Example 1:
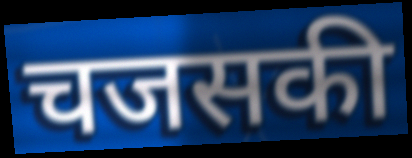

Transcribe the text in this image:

चजसकी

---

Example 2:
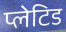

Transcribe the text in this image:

प्लेटिड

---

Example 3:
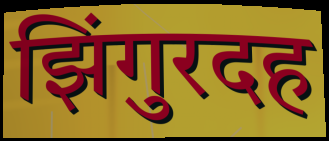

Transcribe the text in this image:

झिंगुरदह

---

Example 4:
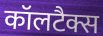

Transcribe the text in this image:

कॉलटैक्स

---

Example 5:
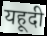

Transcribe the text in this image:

यहूदी